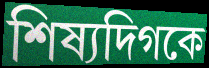
শিষ্যদিগকে